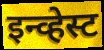
इन्व्हेस्ट